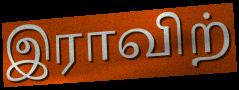
இராவிற்